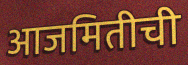
आजमितीची